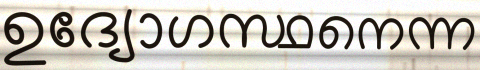
ഉദ്യോഗസ്ഥനെന്ന